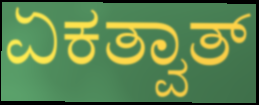
ಏಕತ್ವಾತ್